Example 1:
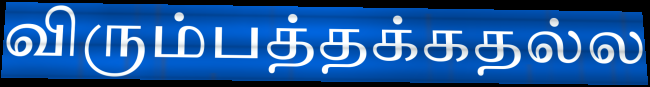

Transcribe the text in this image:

விரும்பத்தக்கதல்ல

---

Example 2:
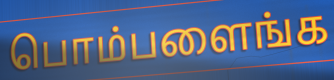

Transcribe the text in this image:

பொம்பளைங்க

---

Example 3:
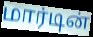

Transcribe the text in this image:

மார்டின்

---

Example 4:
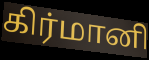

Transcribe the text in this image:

கிர்மானி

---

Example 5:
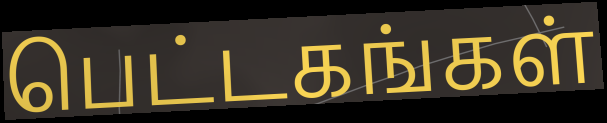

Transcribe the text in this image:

பெட்டகங்கள்